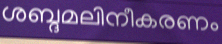
ശബ്ദമലിനീകരണം